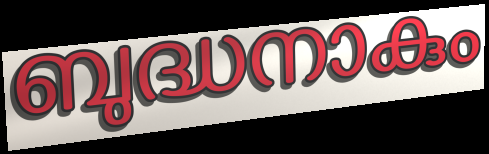
ബുദ്ധനാകും